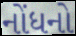
નોંધનો